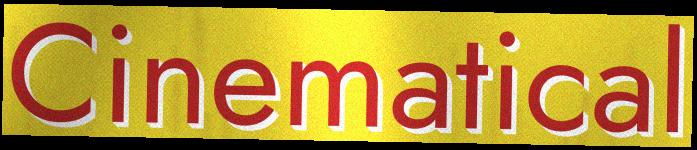
Cinematical